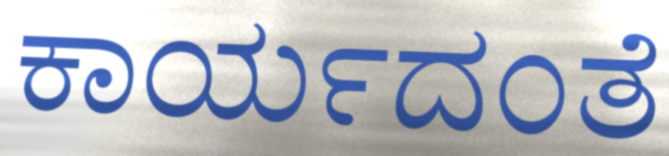
ಕಾರ್ಯದಂತೆ